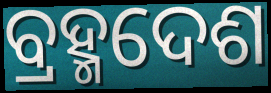
ବ୍ରହ୍ମଦେଶ